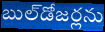
బుల్‌డోజర్లను